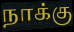
நாக்கு